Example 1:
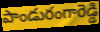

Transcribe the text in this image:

పాండురంగారెడ్డి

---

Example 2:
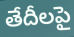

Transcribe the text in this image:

తేదీలపై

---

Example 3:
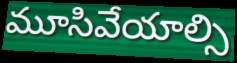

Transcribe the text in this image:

మూసివేయాల్సి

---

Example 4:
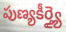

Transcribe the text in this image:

పుణ్యకీర్త్యై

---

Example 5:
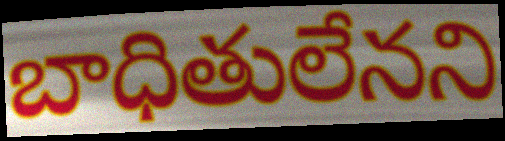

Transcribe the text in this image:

బాధితులేనని